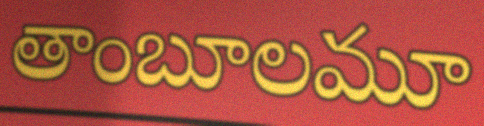
తాంబూలమూ